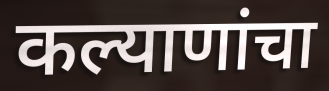
कल्याणांचा